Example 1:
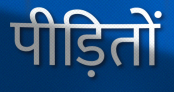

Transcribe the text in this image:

पीड़ितों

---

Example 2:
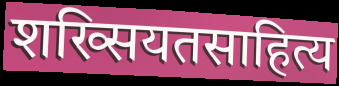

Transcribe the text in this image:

शख्सियतसाहित्य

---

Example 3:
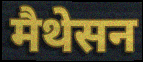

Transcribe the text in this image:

मैथेसन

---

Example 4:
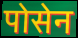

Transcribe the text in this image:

पोसेन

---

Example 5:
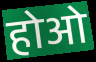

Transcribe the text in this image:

होओ